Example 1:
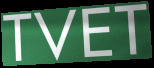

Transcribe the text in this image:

TVET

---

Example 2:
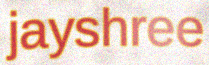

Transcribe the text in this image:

jayshree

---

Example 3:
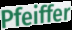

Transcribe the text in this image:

Pfeiffer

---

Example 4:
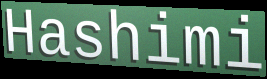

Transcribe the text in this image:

Hashimi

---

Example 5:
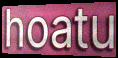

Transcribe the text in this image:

hoatu